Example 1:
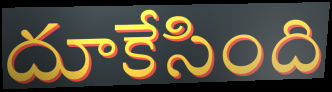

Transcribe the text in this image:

దూకేసింది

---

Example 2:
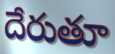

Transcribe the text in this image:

దేరుతూ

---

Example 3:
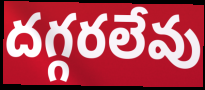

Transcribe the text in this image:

దగ్గరలేవు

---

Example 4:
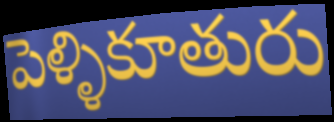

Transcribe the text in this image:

పెళ్ళికూతురు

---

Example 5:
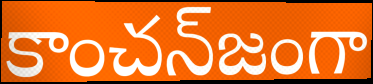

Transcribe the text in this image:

కాంచన్‌జంగా